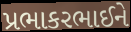
પ્રભાકરભાઈને